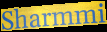
Sharmmi